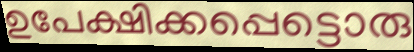
ഉപേക്ഷിക്കപ്പെട്ടൊരു